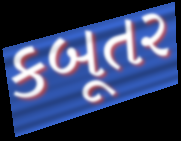
કબૂતર